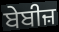
ਬੇਬੀਜ਼